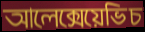
আলেক্সেয়েভিচ